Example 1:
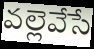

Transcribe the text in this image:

వల్లెవేసే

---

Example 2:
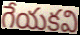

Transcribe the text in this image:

గేయకవి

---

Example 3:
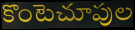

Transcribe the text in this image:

కొంటెచూపుల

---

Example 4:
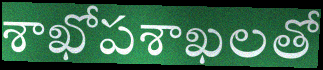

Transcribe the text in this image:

శాఖోపశాఖలతో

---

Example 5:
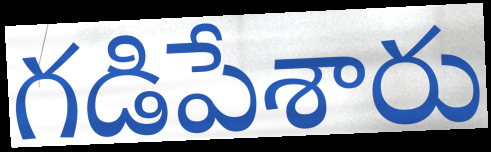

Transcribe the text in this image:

గడిపేశారు